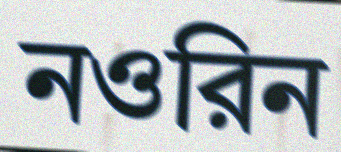
নওরিন